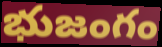
భుజంగం